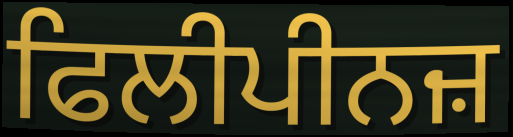
ਫਿਲੀਪੀਨਜ਼